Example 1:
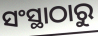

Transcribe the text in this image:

ସଂସ୍ଥାଠାରୁ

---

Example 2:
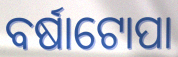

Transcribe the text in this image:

ବର୍ଷାଟୋପା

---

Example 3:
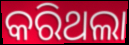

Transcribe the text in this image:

କରିଥଲା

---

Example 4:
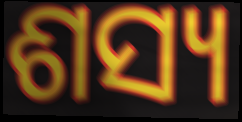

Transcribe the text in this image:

ଶସ୍ଯ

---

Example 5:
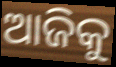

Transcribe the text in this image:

ଆଜିକୁ